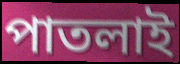
পাতলাই